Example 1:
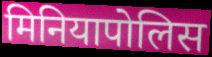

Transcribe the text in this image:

मिनियापोलिस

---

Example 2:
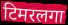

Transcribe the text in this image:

टिमरलगा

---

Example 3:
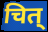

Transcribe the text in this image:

चित्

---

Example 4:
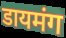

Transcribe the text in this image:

डायमंग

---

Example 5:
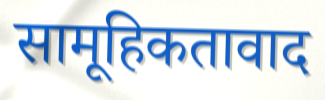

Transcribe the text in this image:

सामूहिकतावाद